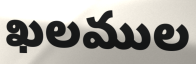
ఖలముల